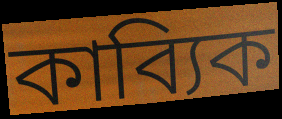
কাব্যিক